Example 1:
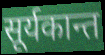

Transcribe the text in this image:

सूर्यकान्त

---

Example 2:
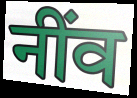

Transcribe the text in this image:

नींव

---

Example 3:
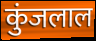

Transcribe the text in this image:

कुंजलाल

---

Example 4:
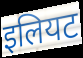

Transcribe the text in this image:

इलियट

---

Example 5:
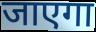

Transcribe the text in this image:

जाएगा